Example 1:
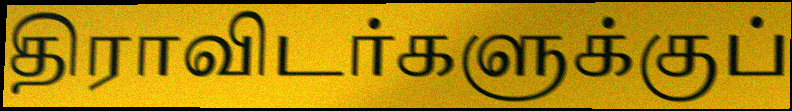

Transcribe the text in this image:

திராவிடர்களுக்குப்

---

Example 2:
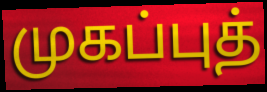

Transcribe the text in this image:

முகப்புத்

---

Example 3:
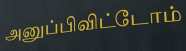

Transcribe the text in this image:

அனுப்பிவிட்டோம்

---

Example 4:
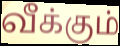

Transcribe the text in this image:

வீக்கும்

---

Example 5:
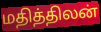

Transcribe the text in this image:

மதித்திலன்